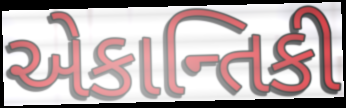
એકાન્તિકી